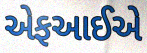
એફઆઈએ